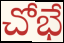
చోభే